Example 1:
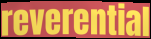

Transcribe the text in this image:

reverential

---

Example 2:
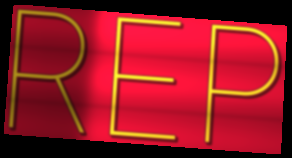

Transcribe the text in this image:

REP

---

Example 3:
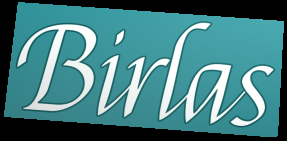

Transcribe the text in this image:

Birlas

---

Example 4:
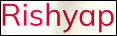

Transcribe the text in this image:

Rishyap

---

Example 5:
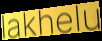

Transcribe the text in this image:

lakhelu